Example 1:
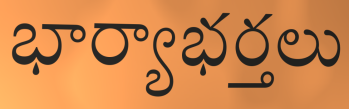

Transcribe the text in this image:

భార్యాభర్తలు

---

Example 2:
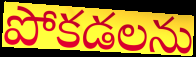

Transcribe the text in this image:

పోకడలను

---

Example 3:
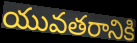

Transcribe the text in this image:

యువతరానికి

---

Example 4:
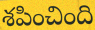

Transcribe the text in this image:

శపించింది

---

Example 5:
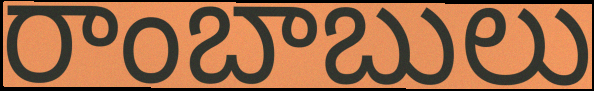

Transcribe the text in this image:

రాంబాబులు